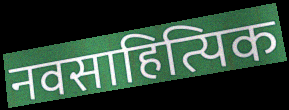
नवसाहित्यिक